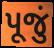
પૂજું